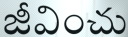
జీవించు